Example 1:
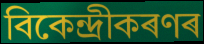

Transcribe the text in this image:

বিকেন্দ্ৰীকৰণৰ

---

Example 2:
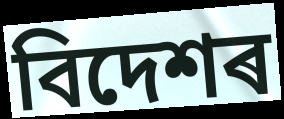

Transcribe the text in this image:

বিদেশৰ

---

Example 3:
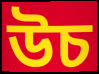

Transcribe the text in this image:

উচ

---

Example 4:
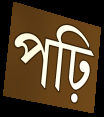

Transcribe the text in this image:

পঢ়ি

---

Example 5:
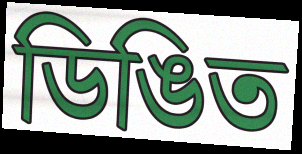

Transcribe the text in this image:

ডিঙিত